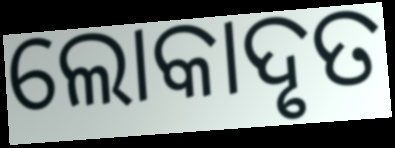
ଲୋକାଦୃତ